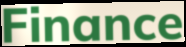
Finance